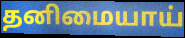
தனிமையாய்